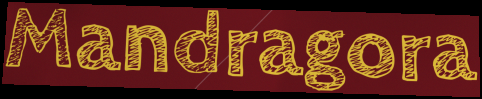
Mandragora